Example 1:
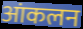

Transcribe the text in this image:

आंकलन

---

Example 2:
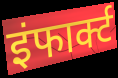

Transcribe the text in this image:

इंफार्क्ट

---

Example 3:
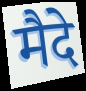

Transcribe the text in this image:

मैदे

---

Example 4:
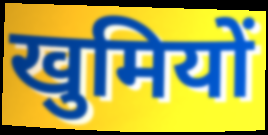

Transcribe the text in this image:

खुमियों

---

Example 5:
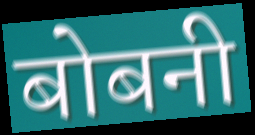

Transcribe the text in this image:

बोबनी